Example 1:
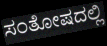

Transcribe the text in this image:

ಸಂತೋಷದಲ್ಲಿ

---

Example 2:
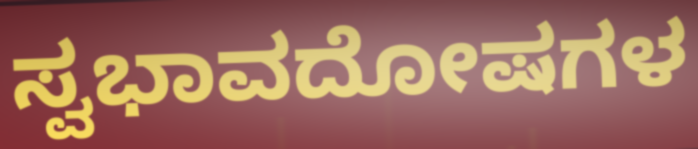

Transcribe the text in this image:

ಸ್ವಭಾವದೋಷಗಳ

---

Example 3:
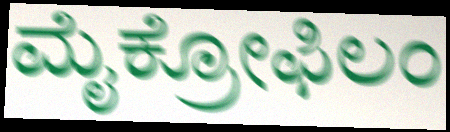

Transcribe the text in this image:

ಮೈಕ್ರೋಫಿಲಂ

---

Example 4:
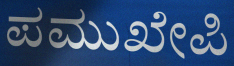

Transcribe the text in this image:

ಪಮುಖೇಪಿ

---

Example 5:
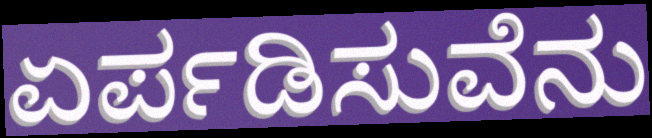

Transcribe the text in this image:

ಏರ್ಪಡಿಸುವೆನು